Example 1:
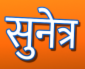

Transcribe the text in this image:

सुनेत्र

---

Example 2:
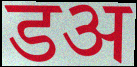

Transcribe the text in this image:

डअ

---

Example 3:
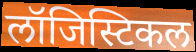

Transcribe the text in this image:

लॉजिस्टिकल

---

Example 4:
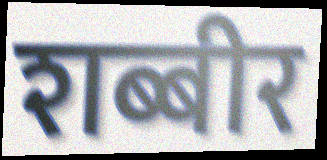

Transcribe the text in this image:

शब्बीर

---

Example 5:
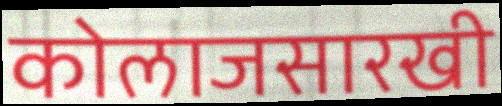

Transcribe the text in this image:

कोलाजसारखी